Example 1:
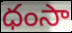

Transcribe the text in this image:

ధంసా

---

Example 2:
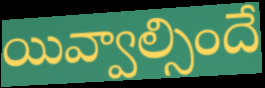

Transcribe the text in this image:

యివ్వాల్సిందే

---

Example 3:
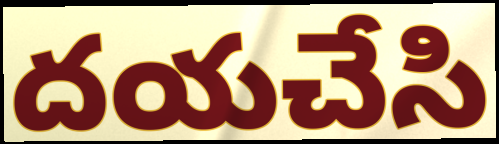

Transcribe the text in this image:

దయచేసి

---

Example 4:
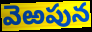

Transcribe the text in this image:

వెఱపున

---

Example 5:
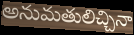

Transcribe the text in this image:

అనుమతులిచ్చినా